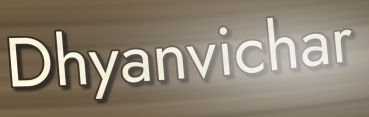
Dhyanvichar